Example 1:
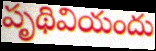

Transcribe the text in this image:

పృథివియందు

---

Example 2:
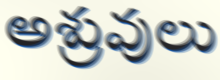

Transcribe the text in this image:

అశ్రువులు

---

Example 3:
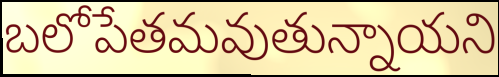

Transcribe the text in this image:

బలోపేతమవుతున్నాయని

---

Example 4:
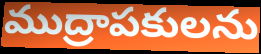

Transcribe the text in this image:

ముద్రాపకులను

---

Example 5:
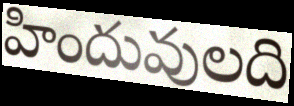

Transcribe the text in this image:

హిందువులది